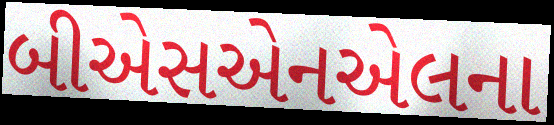
બીએસએનએલના